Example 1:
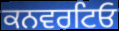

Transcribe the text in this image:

ਕਨਵਰਟਿਓ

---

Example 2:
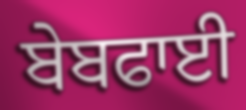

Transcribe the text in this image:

ਬੇਬਫਾਈ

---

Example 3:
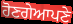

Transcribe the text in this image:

ਹੋਣਗੇਆਪਣੇ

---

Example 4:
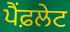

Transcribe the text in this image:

ਪੈਂਫ਼ਲੇਟ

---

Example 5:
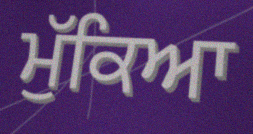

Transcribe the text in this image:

ਮੁੱਕਿਆ